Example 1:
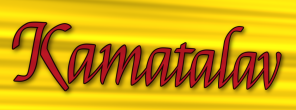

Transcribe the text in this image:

Kamatalav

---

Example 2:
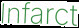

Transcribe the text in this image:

Infarct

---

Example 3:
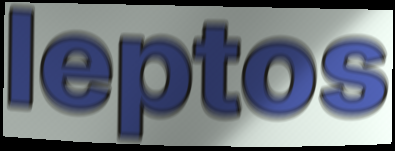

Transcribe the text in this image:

leptos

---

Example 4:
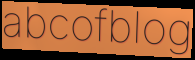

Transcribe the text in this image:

abcofblog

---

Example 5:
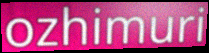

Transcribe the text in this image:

ozhimuri